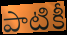
పాటికీ